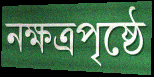
নক্ষত্রপৃষ্ঠে